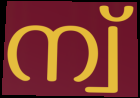
ന്വ്